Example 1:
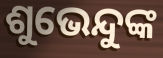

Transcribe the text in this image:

ଶୁଭେନ୍ଦୁଙ୍କ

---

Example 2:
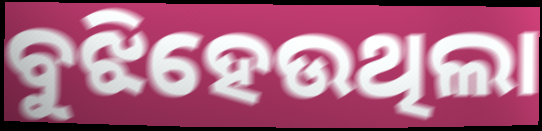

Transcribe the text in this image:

ବୁଝିହେଉଥିଲା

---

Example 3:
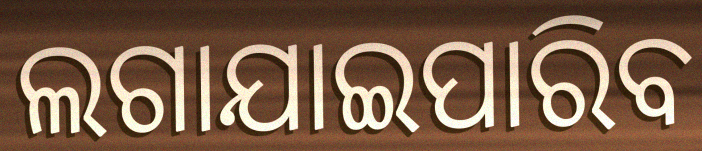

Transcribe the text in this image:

ଲଗାଯାଇପାରିବ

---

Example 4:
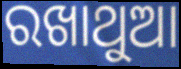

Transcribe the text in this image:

ରଖାଥୁଆ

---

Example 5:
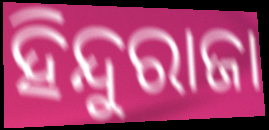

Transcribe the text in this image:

ହିନ୍ଦୁରାଜା